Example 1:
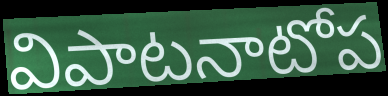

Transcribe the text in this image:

విపాటనాటోప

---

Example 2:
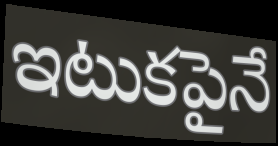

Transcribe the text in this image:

ఇటుకపైనే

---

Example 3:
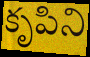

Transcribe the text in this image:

కృపిని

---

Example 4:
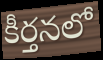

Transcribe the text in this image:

కీర్తనలో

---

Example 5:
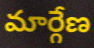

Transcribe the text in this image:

మార్గేణ